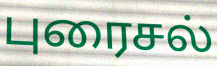
புரைசல்